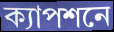
ক্যাপশনে